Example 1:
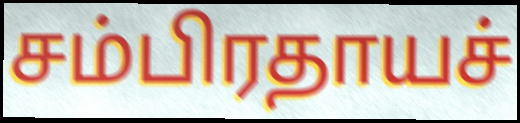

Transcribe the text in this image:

சம்பிரதாயச்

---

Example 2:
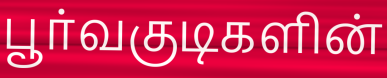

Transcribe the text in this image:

பூர்வகுடிகளின்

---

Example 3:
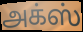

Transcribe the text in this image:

அக்ஸ்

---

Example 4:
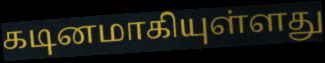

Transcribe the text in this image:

கடினமாகியுள்ளது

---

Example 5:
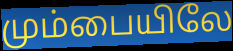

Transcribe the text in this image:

மும்பையிலே